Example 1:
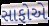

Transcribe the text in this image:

સાફોએ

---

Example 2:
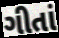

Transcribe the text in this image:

ગીતાં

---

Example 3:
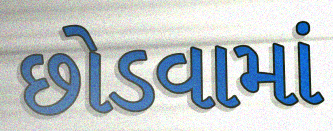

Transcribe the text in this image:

છોડવામાં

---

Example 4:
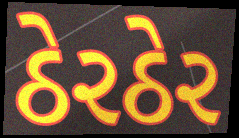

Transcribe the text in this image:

ઠેરઠેર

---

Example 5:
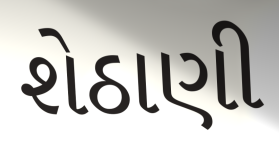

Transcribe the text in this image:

શેઠાણી